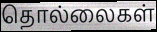
தொல்லைகள்